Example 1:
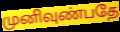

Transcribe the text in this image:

முனிவுண்பதே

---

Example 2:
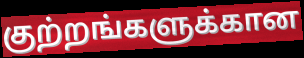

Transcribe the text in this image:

குற்றங்களுக்கான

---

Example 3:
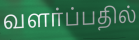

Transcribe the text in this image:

வளர்ப்பதில்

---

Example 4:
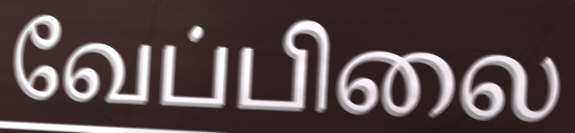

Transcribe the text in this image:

வேப்பிலை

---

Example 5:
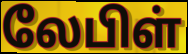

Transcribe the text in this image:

லேபிள்